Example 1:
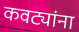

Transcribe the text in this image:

कवट्यांना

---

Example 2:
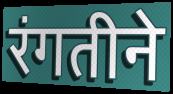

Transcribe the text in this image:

रंगतीने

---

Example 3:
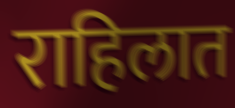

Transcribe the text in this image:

राहिलात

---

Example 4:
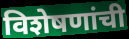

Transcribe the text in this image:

विशेषणांची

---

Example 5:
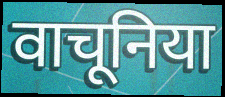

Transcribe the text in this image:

वाचूनिया